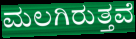
ಮಲಗಿರುತ್ತವೆ